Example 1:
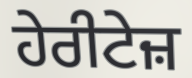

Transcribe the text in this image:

ਹੇਰੀਟੇਜ਼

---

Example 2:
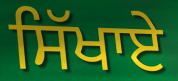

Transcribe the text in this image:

ਸਿੱਖਾਏ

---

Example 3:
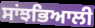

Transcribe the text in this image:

ਸਾਂਝਭਿਆਲੀ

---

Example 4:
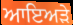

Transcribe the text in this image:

ਆਇਅੜੇ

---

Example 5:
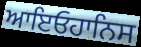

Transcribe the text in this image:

ਆਇਓਹਾਨਿਸ